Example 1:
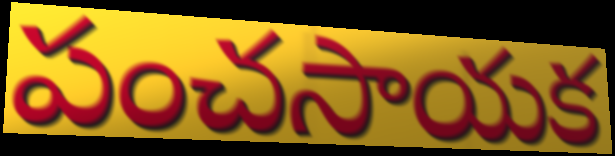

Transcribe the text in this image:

పంచసాయక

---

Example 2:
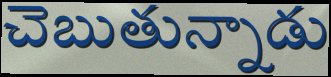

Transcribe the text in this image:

చెబుతున్నాడు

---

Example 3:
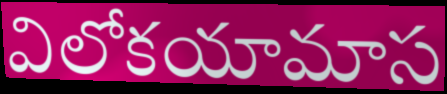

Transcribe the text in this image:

విలోకయామాస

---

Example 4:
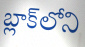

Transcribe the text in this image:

బ్లాక్‌లోని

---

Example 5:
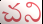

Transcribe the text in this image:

చని